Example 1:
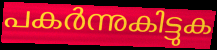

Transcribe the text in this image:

പകർന്നുകിട്ടുക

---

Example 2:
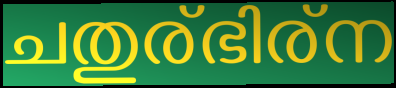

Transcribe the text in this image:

ചതുര്ഭിര്ന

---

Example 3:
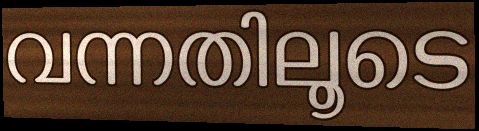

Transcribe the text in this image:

വന്നതിലൂടെ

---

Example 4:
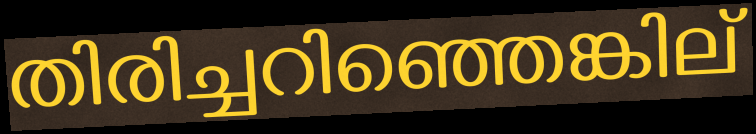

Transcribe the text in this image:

തിരിച്ചറിഞ്ഞെങ്കില്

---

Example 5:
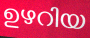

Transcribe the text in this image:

ഉഴറിയ